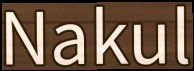
Nakul